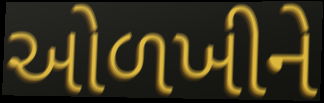
ઓળખીને